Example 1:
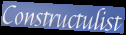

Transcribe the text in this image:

Constructulist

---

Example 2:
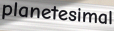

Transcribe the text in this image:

planetesimal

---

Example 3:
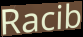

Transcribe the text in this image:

Racib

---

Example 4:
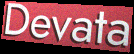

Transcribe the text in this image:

Devata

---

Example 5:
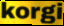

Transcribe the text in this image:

korgi